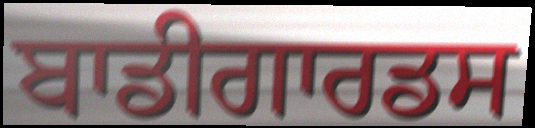
ਬਾਡੀਗਾਰਡਸ